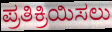
ಪ್ರತಿಕ್ರಿಯಿಸಲು